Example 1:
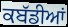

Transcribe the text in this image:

ਕਬੱਡੀਆਂ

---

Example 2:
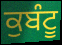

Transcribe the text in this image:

ਕੁਬੰਟੂ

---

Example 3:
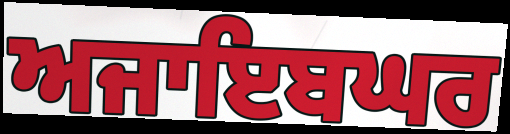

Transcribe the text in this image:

ਅਜਾਇਬਘਰ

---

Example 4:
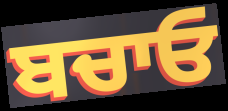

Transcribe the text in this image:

ਬਚਾਓ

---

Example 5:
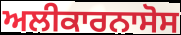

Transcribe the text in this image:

ਅਲੀਕਾਰਨਾਸੋਸ